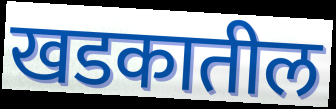
खडकातील